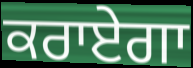
ਕਰਾਏਗਾ